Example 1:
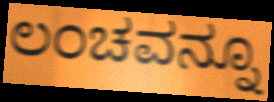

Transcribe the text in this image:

ಲಂಚವನ್ನೂ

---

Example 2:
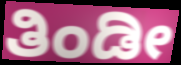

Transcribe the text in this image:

ತಿಂಡೀ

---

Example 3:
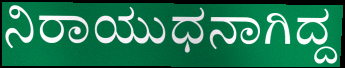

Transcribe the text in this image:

ನಿರಾಯುಧನಾಗಿದ್ದ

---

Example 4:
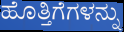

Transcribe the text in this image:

ಹೊತ್ತಿಗೆಗಳನ್ನು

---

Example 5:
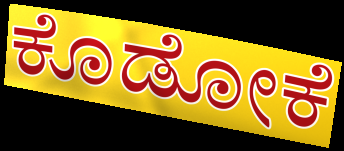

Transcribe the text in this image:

ಕೊಡೋಕೆ